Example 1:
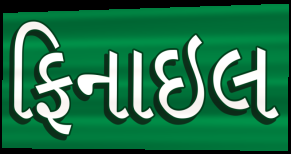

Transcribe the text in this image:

ફિનાઇલ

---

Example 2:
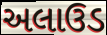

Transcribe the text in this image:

અલાઉડ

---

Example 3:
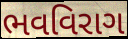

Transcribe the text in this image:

ભવવિરાગ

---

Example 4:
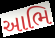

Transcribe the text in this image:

આભિ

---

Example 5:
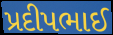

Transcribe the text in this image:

પ્રદીપભાઈ